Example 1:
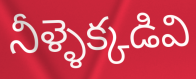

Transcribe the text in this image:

నీళ్ళెక్కడివి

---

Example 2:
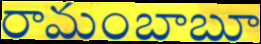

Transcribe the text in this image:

రామంబాబూ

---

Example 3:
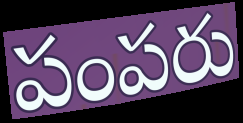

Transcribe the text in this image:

పంపరు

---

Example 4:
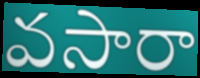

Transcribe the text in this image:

వసారా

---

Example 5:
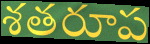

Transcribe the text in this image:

శతరూప